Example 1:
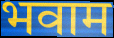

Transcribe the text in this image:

भवाम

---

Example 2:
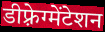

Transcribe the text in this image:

डीफ़्रेग्मेंटेशन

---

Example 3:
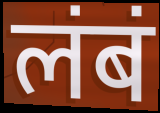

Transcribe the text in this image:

लंबं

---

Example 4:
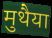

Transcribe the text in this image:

मुथैया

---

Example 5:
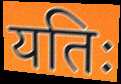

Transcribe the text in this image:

यतिः